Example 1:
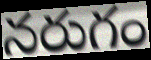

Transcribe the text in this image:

నరుగం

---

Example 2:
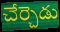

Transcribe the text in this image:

చేర్చెడు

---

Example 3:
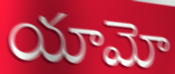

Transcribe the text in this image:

యామో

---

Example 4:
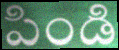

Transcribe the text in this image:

పిండి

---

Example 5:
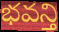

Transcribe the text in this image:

భవన్తి